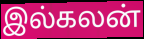
இல்கலன்